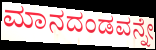
ಮಾನದಂಡವನ್ನೇ